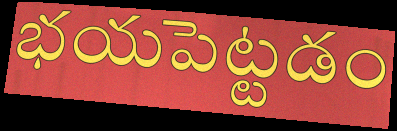
భయపెట్టడం